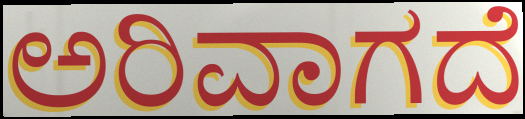
ಅರಿವಾಗದೆ